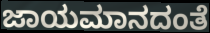
ಜಾಯಮಾನದಂತೆ